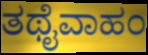
ತಥೈವಾಹಂ